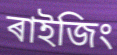
ৰাইজিং